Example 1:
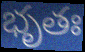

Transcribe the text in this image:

భృతః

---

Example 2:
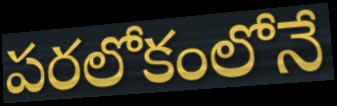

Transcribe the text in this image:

పరలోకంలోనే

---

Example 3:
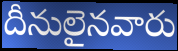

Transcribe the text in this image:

దీనులైనవారు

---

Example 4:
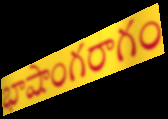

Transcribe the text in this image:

భాషాంగరాగం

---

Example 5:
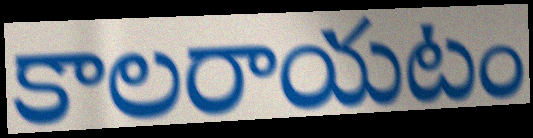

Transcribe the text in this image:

కాలరాయటం